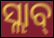
ସ୍ଲାବ୍